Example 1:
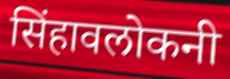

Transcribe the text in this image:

सिंहावलोकनी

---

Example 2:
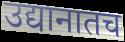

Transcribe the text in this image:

उद्यानातच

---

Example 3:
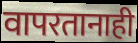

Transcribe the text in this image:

वापरतानाही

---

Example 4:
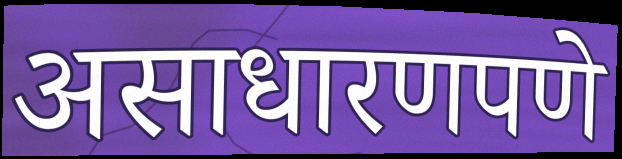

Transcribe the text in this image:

असाधारणपणे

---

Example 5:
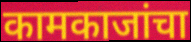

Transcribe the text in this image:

कामकाजांचा